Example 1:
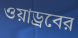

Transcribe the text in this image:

ওয়াড্রবের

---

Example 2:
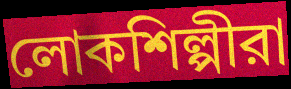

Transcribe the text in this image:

লোকশিল্পীরা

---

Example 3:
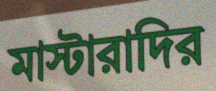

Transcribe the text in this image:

মাস্টারাদির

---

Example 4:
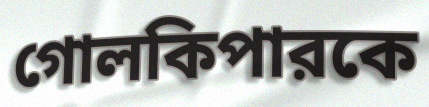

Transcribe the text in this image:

গোলকিপারকে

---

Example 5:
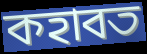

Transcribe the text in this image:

কহাবত